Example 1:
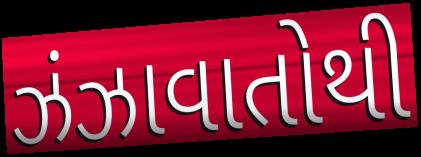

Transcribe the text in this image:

ઝંઝાવાતોથી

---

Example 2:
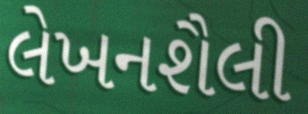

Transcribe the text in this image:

લેખનશૈલી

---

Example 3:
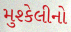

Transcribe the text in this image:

મુશ્કેલીનો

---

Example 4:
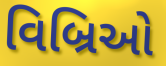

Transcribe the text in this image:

વિબ્રિઓ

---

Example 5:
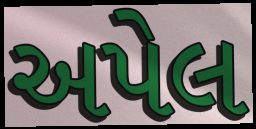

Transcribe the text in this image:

અપેલ